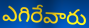
ఎగిరేవారు